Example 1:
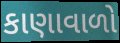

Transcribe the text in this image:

કાણાવાળો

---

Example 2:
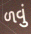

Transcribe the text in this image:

ળવું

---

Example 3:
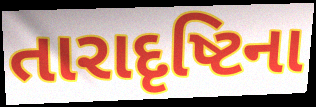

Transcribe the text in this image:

તારાદૃષ્ટિના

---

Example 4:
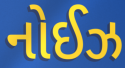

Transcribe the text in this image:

નોઈઝ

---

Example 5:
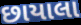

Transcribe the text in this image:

છાયાલા